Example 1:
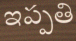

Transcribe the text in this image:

ఇప్పతి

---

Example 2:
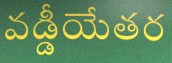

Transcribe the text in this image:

వడ్డీయేతర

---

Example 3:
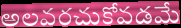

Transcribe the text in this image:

అలవరచుకోవడమే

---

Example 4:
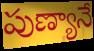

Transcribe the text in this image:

పుణ్యానే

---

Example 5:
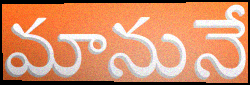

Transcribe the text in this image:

మానునే